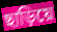
ছাড়িয়ে